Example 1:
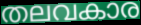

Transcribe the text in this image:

തലവകാര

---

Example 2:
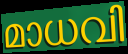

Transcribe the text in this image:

മാധവി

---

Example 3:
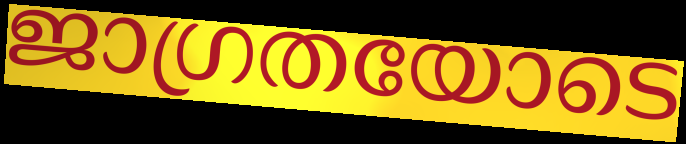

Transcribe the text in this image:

ജാഗ്രതയോടെ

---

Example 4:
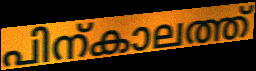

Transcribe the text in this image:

പിന്കാലത്ത്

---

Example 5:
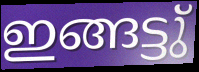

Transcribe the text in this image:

ഇങ്ങട്ടു്